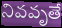
నివవృతే